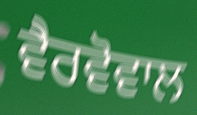
ਵੈਰਵੋਵਾਲ